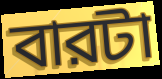
বারটা